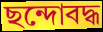
ছন্দোবদ্ধ